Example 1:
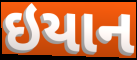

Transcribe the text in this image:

ઇયાન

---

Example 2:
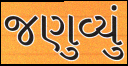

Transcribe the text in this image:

જણુવ્યું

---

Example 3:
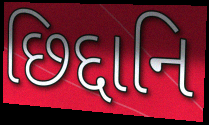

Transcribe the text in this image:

છિદ્દાનિ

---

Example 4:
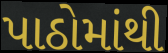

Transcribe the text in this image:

પાઠોમાંથી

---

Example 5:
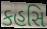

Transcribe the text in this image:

કહસિ